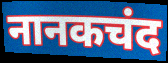
नानकचंद